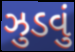
ઝુડવું